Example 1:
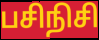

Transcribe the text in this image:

பசிநிசி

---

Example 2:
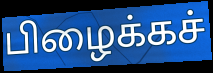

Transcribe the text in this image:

பிழைக்கச்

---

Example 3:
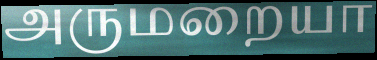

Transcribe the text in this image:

அருமறையா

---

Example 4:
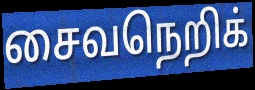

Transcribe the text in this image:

சைவநெறிக்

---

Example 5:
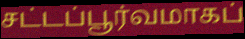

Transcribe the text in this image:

சட்டப்பூர்வமாகப்